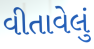
વીતાવેલું